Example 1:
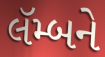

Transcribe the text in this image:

લૅમ્બને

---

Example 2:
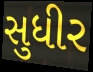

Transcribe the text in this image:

સુધીર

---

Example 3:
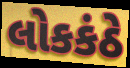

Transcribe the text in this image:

લોકકંઠે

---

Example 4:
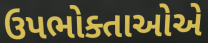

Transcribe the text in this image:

ઉપભોક્તાઓએ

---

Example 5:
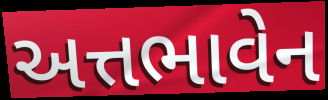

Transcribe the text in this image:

અત્તભાવેન